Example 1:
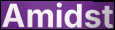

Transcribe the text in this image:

Amidst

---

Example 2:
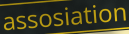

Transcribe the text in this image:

assosiation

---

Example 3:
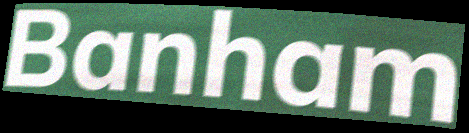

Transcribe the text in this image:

Banham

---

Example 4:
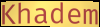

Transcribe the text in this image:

Khadem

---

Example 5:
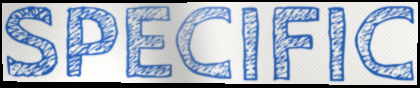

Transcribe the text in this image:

SPECIFIC